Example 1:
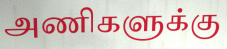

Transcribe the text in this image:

அணிகளுக்கு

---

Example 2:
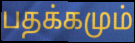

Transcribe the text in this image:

பதக்கமும்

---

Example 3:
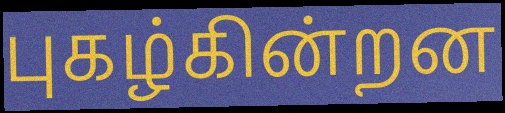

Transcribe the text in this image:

புகழ்கின்றன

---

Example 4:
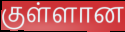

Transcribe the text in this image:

குள்ளான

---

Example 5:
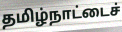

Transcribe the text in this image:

தமிழ்நாட்டைச்